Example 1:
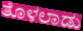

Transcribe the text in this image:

ತೊಳಲಾಡು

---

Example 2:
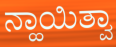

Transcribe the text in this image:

ನ್ಹಾಯಿತ್ವಾ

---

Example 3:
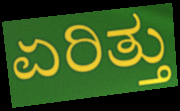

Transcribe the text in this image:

ಏರಿತ್ತು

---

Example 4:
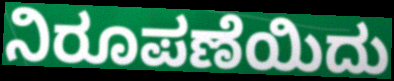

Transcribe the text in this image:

ನಿರೂಪಣೆಯಿದು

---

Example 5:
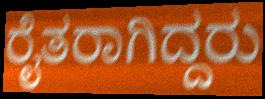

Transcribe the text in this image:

ರೈತರಾಗಿದ್ದರು